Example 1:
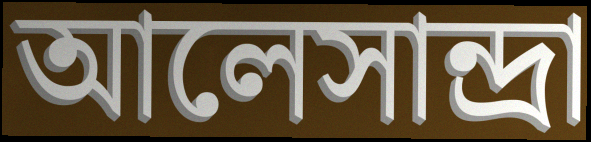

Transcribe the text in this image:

আলেসান্দ্রা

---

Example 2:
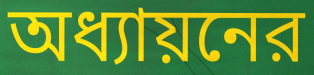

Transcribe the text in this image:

অধ্যায়নের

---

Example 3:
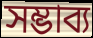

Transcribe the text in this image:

সম্ভাব্য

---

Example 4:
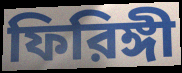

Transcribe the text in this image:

ফিরিঙ্গী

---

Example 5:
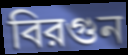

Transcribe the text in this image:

বিরগুন